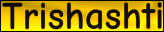
Trishashti